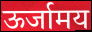
ऊर्जामय